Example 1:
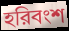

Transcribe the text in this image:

হরিবংশ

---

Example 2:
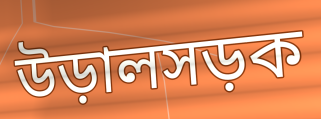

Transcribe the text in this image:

উড়ালসড়ক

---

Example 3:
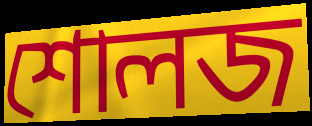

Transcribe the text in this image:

শোলজ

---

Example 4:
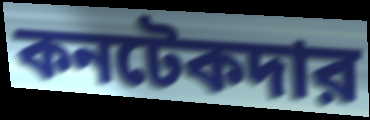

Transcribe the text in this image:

কনটেকদার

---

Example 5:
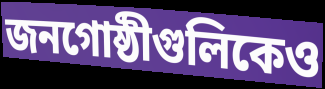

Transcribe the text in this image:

জনগোষ্ঠীগুলিকেও